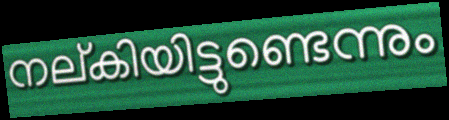
നല്കിയിട്ടുണ്ടെന്നും